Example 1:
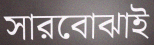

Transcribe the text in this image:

সারবোঝাই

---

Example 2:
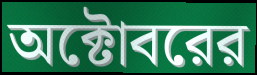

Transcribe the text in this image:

অক্টোবরের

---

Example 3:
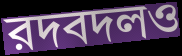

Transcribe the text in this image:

রদবদলও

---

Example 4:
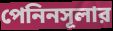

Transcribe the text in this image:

পেনিনসূলার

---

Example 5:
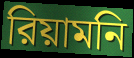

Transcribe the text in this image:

রিয়ামনি